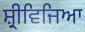
ਸ਼੍ਰੀਵਿਜਿਆ